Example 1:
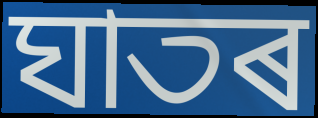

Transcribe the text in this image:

ঘাতৰ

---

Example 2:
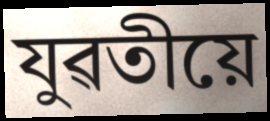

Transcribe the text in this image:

যুৱতীয়ে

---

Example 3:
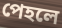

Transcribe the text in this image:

পেহলে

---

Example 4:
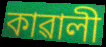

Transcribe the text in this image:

কাৱালী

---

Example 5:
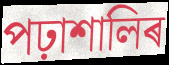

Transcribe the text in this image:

পঢ়াশালিৰ